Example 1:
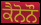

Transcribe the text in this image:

ਕੈਨੋਨੌ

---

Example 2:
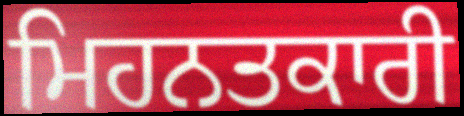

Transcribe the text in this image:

ਮਿਹਨਤਕਾਰੀ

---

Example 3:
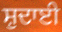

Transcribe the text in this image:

ਸ਼ੁਦਾਈ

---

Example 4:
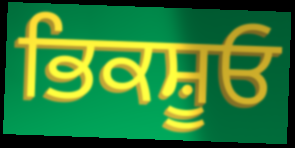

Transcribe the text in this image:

ਭਿਕਸ਼ੂਓ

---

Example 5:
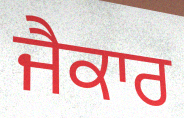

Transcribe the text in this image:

ਜੈਕਾਰ